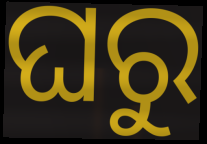
ଘରୁ